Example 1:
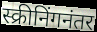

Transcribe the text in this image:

स्क्रीनिंगनंतर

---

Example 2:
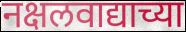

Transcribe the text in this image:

नक्षलवाद्याच्या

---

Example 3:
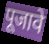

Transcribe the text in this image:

पूजावे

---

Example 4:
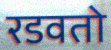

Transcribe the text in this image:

रडवतो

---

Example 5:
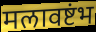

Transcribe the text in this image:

मलावष्टंभ